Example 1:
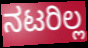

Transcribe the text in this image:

ನಟರಿಲ್ಲ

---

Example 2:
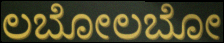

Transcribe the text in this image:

ಲಬೋಲಬೋ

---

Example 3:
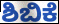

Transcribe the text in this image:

ಶಿಬಿಕೆ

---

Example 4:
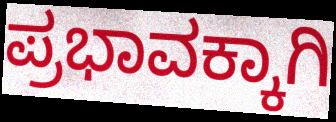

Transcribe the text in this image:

ಪ್ರಭಾವಕ್ಕಾಗಿ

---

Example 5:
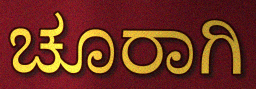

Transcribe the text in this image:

ಚೂರಾಗಿ